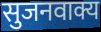
सुजनवाक्य